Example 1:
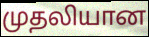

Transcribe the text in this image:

முதலியான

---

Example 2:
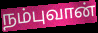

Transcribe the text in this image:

நம்புவான்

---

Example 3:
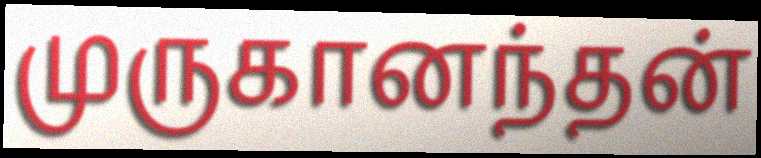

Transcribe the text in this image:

முருகானந்தன்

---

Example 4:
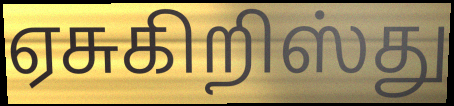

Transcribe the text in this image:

ஏசுகிறிஸ்து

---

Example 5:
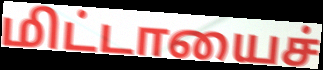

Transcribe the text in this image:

மிட்டாயைச்